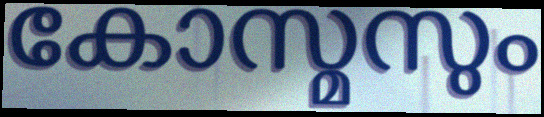
കോസ്മസും